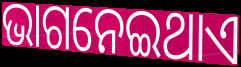
ଭାଗନେଇଥାଏ